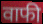
वाफी